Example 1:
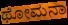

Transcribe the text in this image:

ಥೋಮನಾ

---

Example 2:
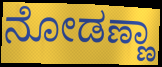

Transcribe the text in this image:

ನೋಡಣ್ಣಾ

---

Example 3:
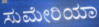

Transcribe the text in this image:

ಸುಮೇರಿಯಾ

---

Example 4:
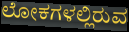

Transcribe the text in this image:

ಲೋಕಗಳಲ್ಲಿರುವ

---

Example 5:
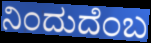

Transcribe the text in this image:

ನಿಂದುದೆಂಬ